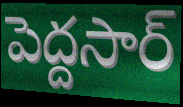
పెద్దసార్